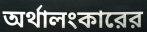
অর্থালংকারের